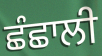
ਛੰਛਾਲੀ